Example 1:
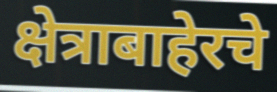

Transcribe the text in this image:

क्षेत्राबाहेरचे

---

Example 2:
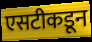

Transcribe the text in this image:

एसटीकडून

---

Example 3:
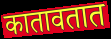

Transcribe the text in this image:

कातावतात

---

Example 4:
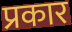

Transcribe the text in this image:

प्रकार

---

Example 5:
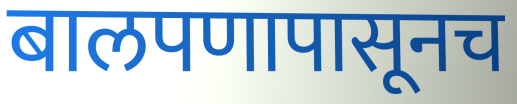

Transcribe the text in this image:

बालपणापासूनच